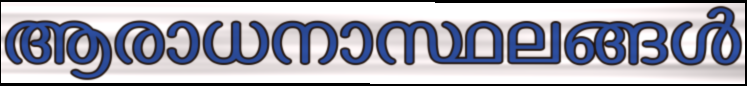
ആരാധനാസ്ഥലങ്ങൾ